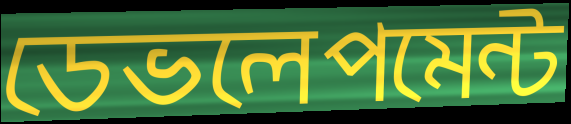
ডেভলেপমেন্ট